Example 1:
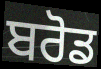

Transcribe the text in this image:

ਬਰੋਡ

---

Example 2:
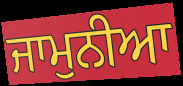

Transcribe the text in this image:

ਜਾਮੁਨੀਆ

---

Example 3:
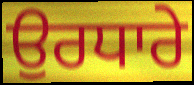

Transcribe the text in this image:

ਉਰਧਾਰੇ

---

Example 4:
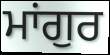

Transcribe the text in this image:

ਮਾਂਗੁਰ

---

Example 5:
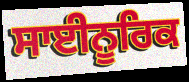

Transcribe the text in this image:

ਸਾਈਨੂਰਿਕ